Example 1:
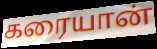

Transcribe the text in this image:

கரையான்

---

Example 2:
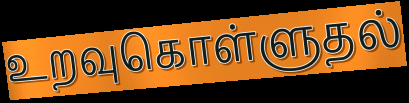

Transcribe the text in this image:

உறவுகொள்ளுதல்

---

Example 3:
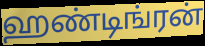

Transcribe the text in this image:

ஹண்டிங்ரன்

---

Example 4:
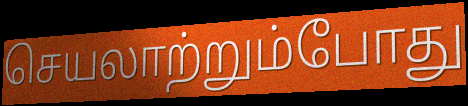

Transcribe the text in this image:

செயலாற்றும்போது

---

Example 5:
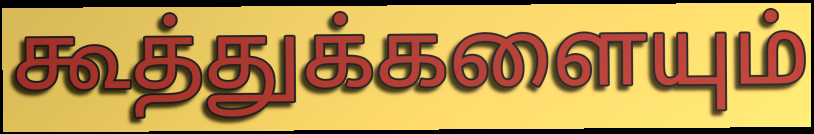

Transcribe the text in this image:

கூத்துக்களையும்